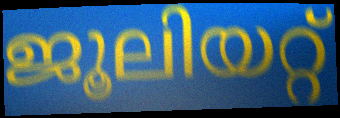
ജൂലിയറ്റ്